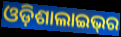
ଓଡ଼ିଶାଲାଇଭ୍‌ର